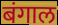
बंगाल